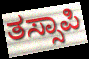
ತಸ್ಸಾಪಿ